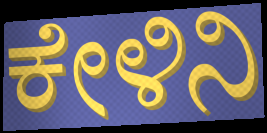
ಕೇಳಿನಿ